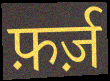
फ़र्ज़